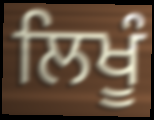
ਲਿਖੂੰ